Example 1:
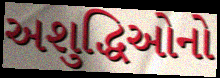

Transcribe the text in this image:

અશુદ્ધિઓનો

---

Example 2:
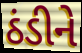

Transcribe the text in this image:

ઠંડીને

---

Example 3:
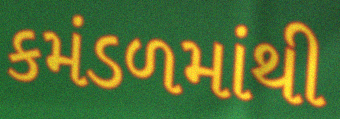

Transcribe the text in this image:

કમંડળમાંથી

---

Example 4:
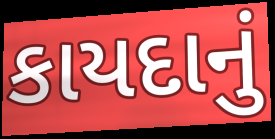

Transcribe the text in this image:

કાયદાનું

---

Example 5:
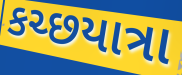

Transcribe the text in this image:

કચ્છયાત્રા